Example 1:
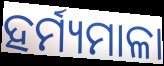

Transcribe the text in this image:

ହର୍ମ୍ୟମାଳା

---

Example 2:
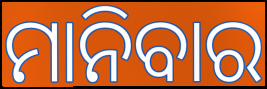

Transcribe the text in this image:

ମାନିବାର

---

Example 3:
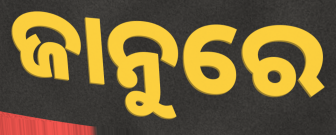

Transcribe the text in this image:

ଜାନୁରେ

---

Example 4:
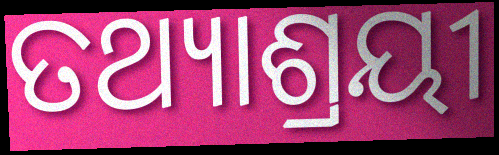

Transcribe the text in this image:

ତଥ୍ୟାଶ୍ରୟୀ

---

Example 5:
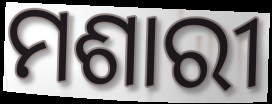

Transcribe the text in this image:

ମଶାରୀ